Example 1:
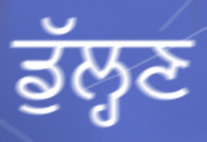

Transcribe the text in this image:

ਡੁੱਲ੍ਹਣ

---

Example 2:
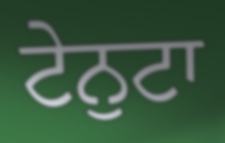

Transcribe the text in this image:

ਟੇਨੁਟਾ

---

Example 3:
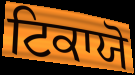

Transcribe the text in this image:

ਟਿਕਾਯੋ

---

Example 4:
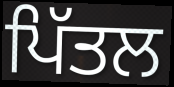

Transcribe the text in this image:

ਪਿੱਤਲ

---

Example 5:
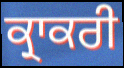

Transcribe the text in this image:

ਕ੍ਰਾਕਰੀ